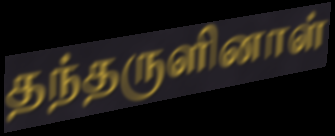
தந்தருளினாள்